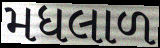
મધલાળ